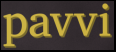
pavvi